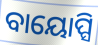
ବାୟୋପ୍ସି